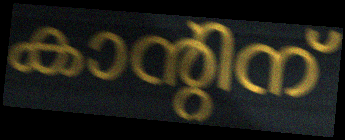
കാന്റിന്